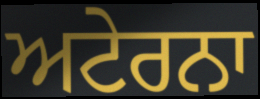
ਅਟੇਰਨਾ